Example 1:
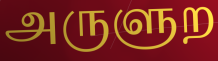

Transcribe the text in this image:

அருளுற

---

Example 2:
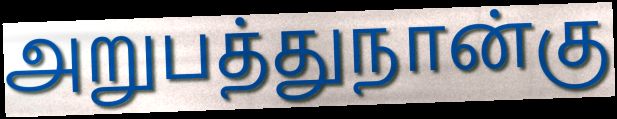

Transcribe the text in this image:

அறுபத்துநான்கு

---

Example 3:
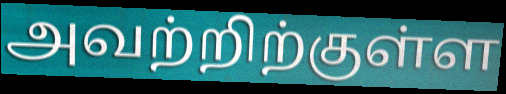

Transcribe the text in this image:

அவற்றிற்குள்ள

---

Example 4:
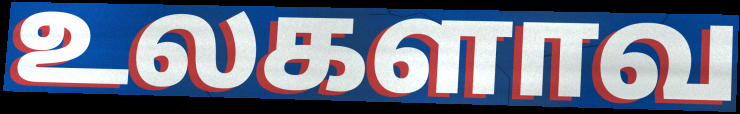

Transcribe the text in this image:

உலகளாவ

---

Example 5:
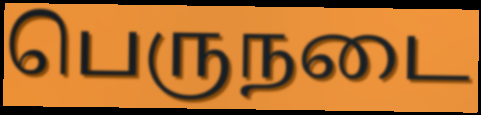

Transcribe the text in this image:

பெருநடை